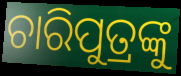
ଚାରିପୁତ୍ରଙ୍କୁ